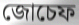
জোচেফ